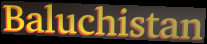
Baluchistan